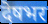
देषभर